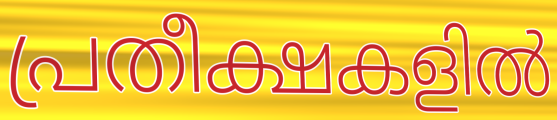
പ്രതീക്ഷകളിൽ